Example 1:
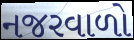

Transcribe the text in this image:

નજરવાળો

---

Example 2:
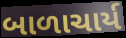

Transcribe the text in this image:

બાળાચાર્ય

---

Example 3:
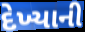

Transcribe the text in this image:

દેખ્યાની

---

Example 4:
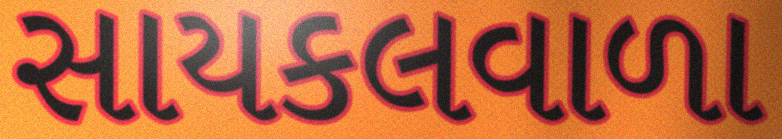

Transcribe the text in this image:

સાયકલવાળા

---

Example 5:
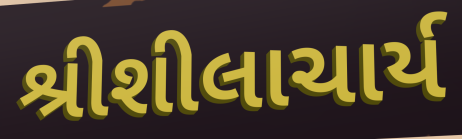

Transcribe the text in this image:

શ્રીશીલાચાર્ય